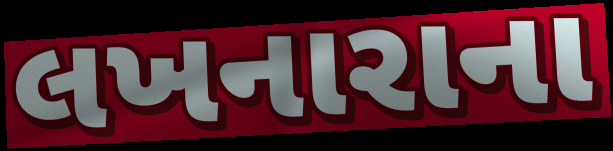
લખનારાના